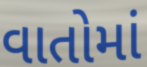
વાતોમાં